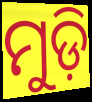
ମୁଡ଼ି